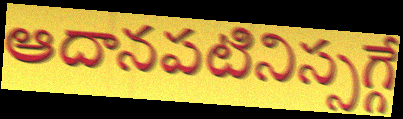
ఆదానపటినిస్సగ్గే